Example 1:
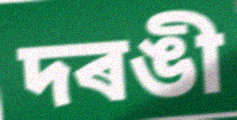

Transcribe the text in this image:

দৰঙী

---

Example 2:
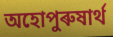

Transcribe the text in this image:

অহোপুৰুষাৰ্থ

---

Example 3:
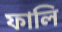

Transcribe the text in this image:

ফালি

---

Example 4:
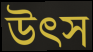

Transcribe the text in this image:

উৎস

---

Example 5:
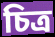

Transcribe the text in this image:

চিত্ৰ